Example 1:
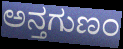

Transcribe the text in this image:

ಅನ್ತಗುಣಂ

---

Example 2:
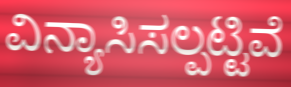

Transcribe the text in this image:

ವಿನ್ಯಾಸಿಸಲ್ಪಟ್ಟಿವೆ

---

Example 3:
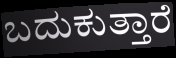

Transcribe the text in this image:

ಬದುಕುತ್ತಾರೆ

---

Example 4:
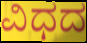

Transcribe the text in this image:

ವಿಧದ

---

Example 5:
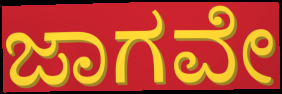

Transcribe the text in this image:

ಜಾಗವೇ